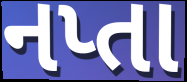
નપ્તા